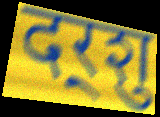
दर्शु